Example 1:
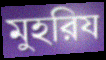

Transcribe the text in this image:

মুহরিয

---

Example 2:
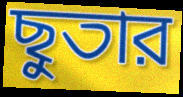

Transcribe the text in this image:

ছুতার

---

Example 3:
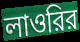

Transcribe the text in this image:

লাওরির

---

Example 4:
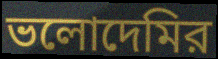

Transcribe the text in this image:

ভলোদেমির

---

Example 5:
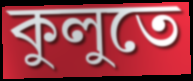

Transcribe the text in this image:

কুলুতে